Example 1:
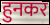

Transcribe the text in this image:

हुनकर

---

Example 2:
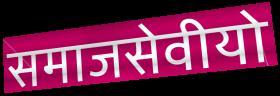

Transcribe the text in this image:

समाजसेवीयो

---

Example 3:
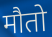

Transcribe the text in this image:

मौतो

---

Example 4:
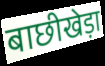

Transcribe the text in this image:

बाछीखेड़ा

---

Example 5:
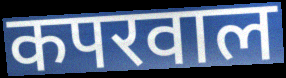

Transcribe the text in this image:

कपरवाल